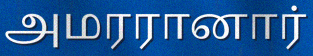
அமரரானார்